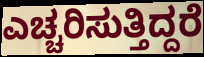
ಎಚ್ಚರಿಸುತ್ತಿದ್ದರೆ